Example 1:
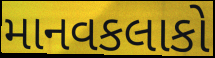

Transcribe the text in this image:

માનવકલાકો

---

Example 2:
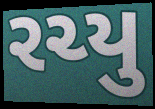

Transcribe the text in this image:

રચ્યુ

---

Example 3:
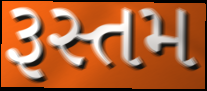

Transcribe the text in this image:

રૂસ્તમ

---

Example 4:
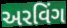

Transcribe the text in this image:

અરવિંગ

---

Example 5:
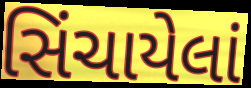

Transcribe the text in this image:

સિંચાયેલાં